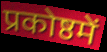
प्रकोष्ठमें